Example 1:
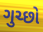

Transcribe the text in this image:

ગુચ્છો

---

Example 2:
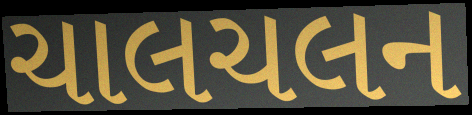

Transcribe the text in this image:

ચાલચલન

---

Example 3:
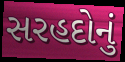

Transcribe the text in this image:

સરહદોનું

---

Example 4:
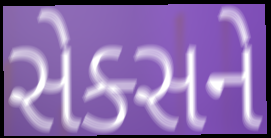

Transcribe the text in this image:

સેક્સને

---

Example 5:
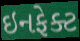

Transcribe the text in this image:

ઇનફેક્ટ